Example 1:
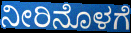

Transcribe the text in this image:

ನೀರಿನೊಳಗೆ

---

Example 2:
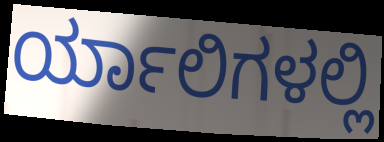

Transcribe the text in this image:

ರ್ಯಾಲಿಗಳಲ್ಲಿ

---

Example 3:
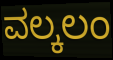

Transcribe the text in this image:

ವಲ್ಕಲಂ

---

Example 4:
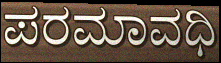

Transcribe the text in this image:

ಪರಮಾವಧಿ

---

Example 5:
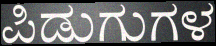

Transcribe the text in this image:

ಪಿಡುಗುಗಳ